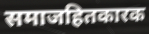
समाजहितकारक